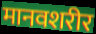
मानवशरीर